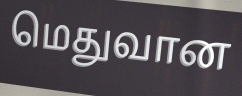
மெதுவான